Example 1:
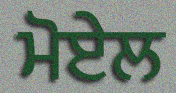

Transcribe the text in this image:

ਮੋਏਲ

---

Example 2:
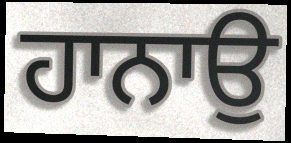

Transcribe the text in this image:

ਹਾਨਾਉ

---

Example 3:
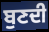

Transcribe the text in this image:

ਬੁਣਦੀ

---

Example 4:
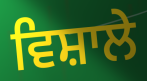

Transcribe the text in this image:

ਵਿਸ਼ਾਲੇ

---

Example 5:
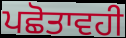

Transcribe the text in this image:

ਪਛੋਤਾਵਹੀ